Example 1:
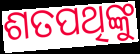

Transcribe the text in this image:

ଶତପଥିଙ୍କୁ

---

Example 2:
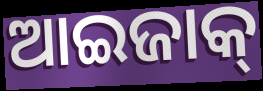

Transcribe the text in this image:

ଆଇଜାକ୍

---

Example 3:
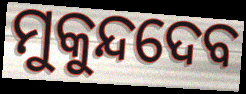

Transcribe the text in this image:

ମୁକୁନ୍ଦଦେବ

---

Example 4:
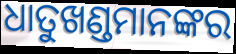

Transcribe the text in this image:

ଧାତୁଖଣ୍ଡମାନଙ୍କର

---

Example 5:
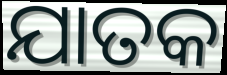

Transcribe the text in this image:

ଯାତକ